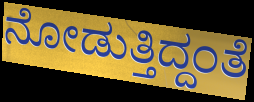
ನೋಡುತ್ತಿದ್ದಂತೆ